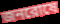
জনরোষে